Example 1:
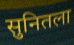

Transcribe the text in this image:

सुनितला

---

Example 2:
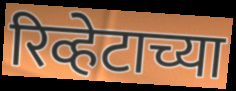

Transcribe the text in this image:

रिव्हेटाच्या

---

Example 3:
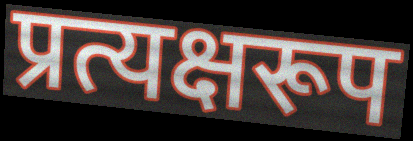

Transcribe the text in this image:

प्रत्यक्षरूप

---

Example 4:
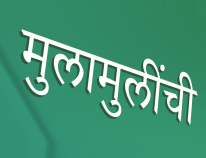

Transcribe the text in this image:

मुलामुलींची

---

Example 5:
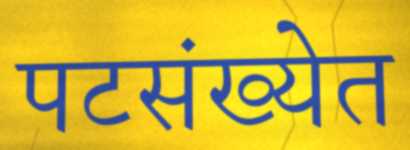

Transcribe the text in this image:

पटसंख्येत